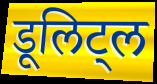
डूलिट्ल